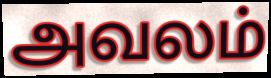
அவலம்